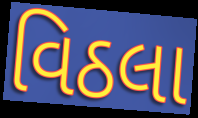
વિઠલા